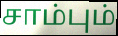
சாம்பும்